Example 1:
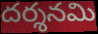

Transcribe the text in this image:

దర్శనమి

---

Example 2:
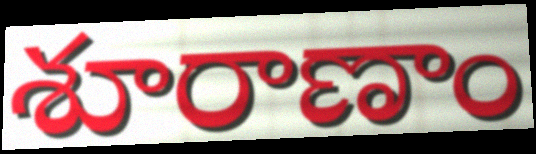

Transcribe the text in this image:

శూరాణాం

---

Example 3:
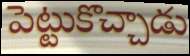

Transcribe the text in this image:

పెట్టుకొచ్చాడు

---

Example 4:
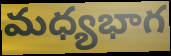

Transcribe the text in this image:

మధ్యభాగ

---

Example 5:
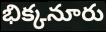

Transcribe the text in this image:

భిక్కనూరు